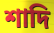
শাদি